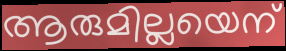
ആരുമില്ലയെന്